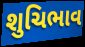
શુચિભાવ